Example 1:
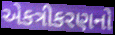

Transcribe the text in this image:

એકત્રીકરણનો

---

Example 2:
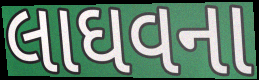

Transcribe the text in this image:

લાઘવના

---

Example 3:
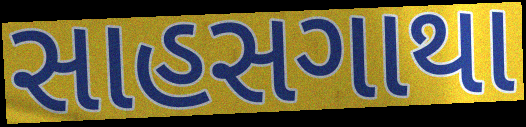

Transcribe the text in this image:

સાહસગાથા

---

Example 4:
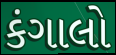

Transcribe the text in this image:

કંગાલો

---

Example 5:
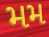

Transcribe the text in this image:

મમ